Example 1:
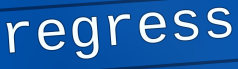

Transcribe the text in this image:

regress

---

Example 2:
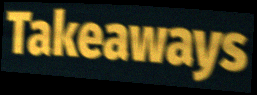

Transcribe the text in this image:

Takeaways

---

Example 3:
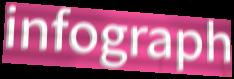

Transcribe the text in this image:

infograph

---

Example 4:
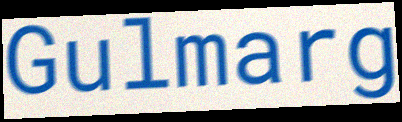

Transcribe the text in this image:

Gulmarg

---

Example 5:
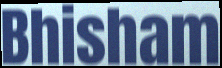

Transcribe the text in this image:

Bhisham